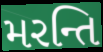
મરન્તિ